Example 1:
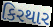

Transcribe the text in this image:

કિરથાર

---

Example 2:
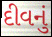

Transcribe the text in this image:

દીવનું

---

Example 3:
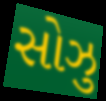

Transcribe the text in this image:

સોઝુ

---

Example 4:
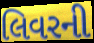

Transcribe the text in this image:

લિવરની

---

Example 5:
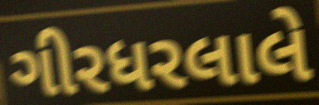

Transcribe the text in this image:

ગીરધરલાલે